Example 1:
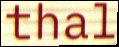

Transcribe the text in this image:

thal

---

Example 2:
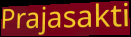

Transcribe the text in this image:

Prajasakti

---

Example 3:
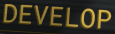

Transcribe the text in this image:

DEVELOP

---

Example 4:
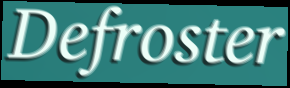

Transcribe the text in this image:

Defroster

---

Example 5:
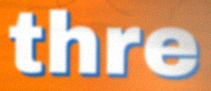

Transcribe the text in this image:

thre